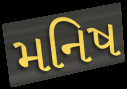
મનિષ